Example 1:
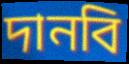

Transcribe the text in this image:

দানবি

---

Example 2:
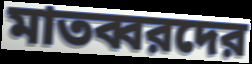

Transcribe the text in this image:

মাতব্বরদের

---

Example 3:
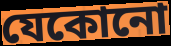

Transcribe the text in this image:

যেকোনো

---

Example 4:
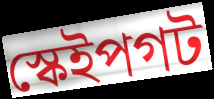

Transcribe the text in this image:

স্কেইপগট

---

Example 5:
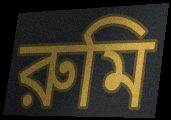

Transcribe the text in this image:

রুমি